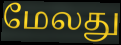
மேலது